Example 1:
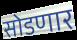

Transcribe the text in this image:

सोडणार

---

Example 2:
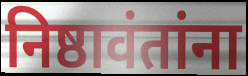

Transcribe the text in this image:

निष्ठावंतांना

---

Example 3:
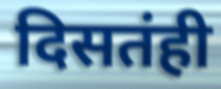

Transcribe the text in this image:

दिसतंही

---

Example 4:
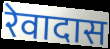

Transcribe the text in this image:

रेवादास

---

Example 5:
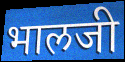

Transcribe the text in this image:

भालजी